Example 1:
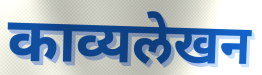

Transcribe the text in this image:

काव्यलेखन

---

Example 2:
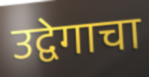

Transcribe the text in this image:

उद्वेगाचा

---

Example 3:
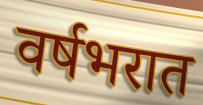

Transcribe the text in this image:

वर्षभरात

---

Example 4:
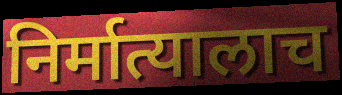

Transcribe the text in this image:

निर्मात्यालाच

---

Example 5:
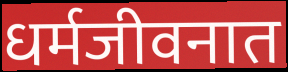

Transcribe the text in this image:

धर्मजीवनात